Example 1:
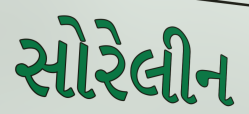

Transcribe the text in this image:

સોરેલીન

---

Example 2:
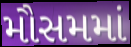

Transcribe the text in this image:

મૌસમમાં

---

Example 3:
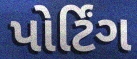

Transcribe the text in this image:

પોર્ટિંગ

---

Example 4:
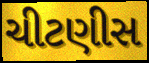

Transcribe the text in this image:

ચીટણીસ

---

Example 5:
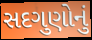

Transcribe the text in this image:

સદગુણોનું